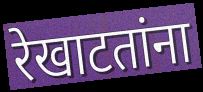
रेखाटतांना